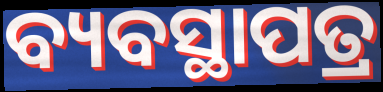
ବ୍ୟବସ୍ଥାପତ୍ର